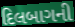
દિલબાગની